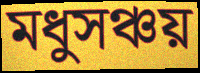
মধুসঞ্চয়